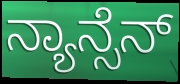
ನ್ಯಾನ್ಸೆನ್